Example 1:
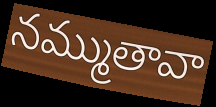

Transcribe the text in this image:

నమ్ముతావా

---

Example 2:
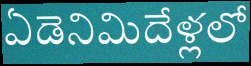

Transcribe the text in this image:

ఏడెనిమిదేళ్లలో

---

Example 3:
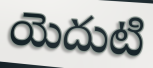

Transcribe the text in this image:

యెదుటి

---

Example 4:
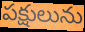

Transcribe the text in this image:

పక్షులును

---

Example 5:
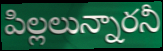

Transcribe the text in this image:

పిల్లలున్నారనీ